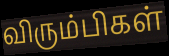
விரும்பிகள்